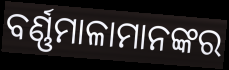
ବର୍ଣ୍ଣମାଳାମାନଙ୍କର